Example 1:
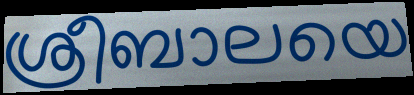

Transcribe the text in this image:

ശ്രീബാലയെ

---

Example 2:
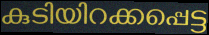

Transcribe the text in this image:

കുടിയിറക്കപ്പെട്ട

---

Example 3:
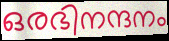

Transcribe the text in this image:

ഒരഭിനന്ദനം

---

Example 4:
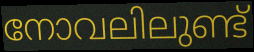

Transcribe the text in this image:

നോവലിലുണ്ട്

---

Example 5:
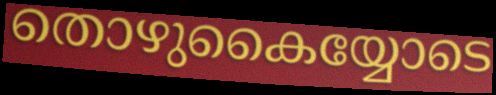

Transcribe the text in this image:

തൊഴുകൈയ്യോടെ